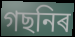
গছনিৰ